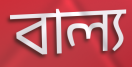
বাল্য